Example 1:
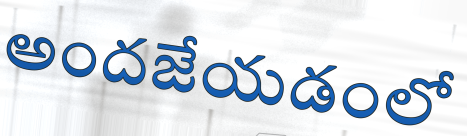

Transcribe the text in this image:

అందజేయడంలో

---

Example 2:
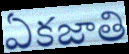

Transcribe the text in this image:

ఏకజాతి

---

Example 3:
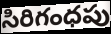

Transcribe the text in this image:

సిరిగంధపు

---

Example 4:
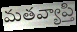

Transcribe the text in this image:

మతవ్యాప్తి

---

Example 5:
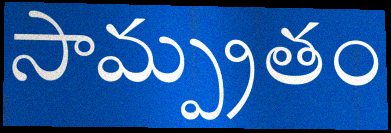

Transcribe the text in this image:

సామ్ప్రతం